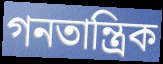
গনতান্ত্ৰিক